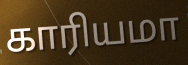
காரியமா